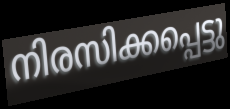
നിരസിക്കപ്പെട്ടു